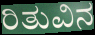
ರಿತುವಿನ